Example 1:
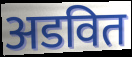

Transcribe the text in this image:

अडवित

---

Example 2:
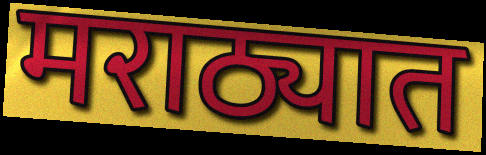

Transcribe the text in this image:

मराठ्यात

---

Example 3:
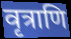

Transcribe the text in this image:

वृत्राणि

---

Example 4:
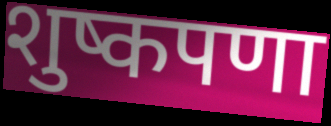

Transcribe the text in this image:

शुष्कपणा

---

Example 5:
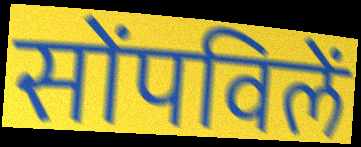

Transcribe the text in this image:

सोंपविलें